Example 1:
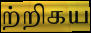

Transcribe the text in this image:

ற்றிகய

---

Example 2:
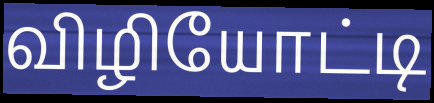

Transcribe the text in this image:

விழியோட்டி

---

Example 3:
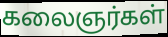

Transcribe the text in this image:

கலைஞர்கள்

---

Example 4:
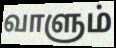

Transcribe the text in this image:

வாளும்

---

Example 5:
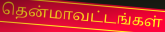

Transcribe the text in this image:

தென்மாவட்டங்கள்